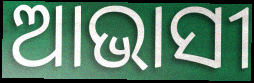
ଆଭାସୀ